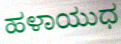
ಹಳಾಯುಧ